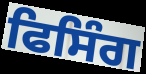
ਫਿਸਿੰਗ